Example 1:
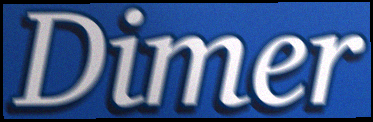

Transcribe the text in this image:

Dimer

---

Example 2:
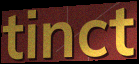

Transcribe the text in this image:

tinct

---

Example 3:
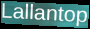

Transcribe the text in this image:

Lallantop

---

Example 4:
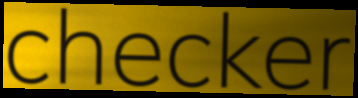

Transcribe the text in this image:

checker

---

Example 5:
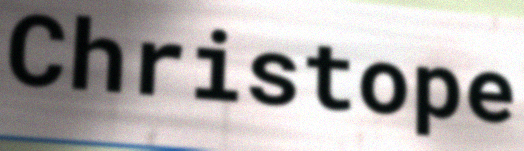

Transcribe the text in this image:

Christope